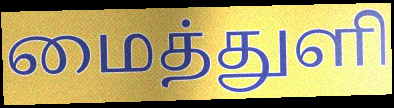
மைத்துளி